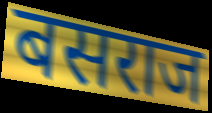
बसराज